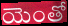
యెంతో